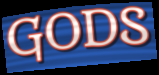
GODS